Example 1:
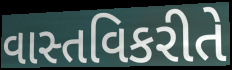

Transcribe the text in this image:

વાસ્તવિકરીતે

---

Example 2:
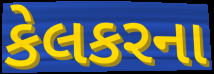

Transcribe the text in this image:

કેલકરના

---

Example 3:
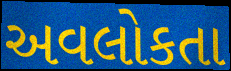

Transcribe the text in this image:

અવલોકતા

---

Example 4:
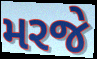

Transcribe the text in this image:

મરજે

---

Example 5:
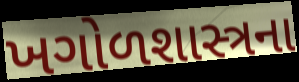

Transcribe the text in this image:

ખગોળશાસ્ત્રના